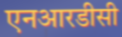
एनआरडीसी